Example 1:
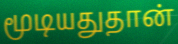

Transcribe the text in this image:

மூடியதுதான்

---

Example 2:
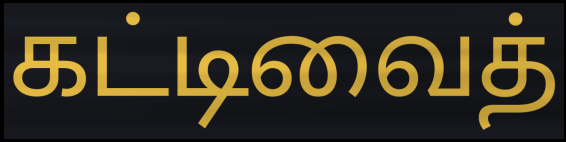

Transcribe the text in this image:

கட்டிவைத்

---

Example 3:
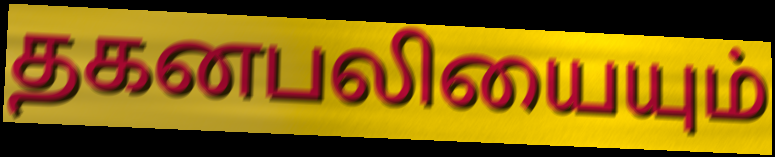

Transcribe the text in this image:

தகனபலியையும்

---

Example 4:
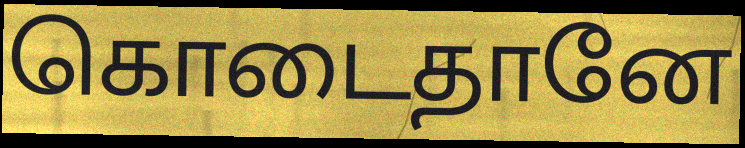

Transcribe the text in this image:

கொடைதானே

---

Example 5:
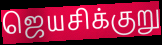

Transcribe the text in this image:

ஜெயசிக்குறு